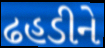
ઢહડીને